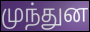
முந்துன